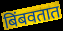
बिंबवतात